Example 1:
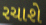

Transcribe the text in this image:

રચાશે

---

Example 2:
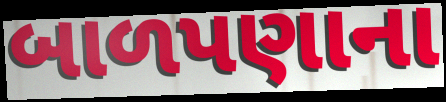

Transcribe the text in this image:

બાળપણાના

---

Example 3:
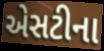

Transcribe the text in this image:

એસટીના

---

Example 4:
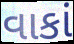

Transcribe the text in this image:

વાકાં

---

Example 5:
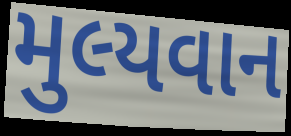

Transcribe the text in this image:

મુલ્યવાન